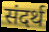
संदर्थ